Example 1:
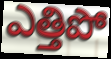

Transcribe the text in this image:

ఎత్తిపో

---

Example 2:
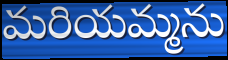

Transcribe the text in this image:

మరియమ్మను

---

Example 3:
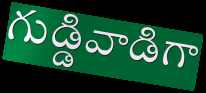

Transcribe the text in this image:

గుడ్డివాడిగా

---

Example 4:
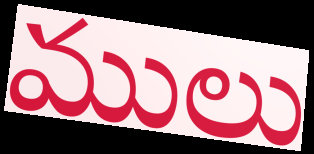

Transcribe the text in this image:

ములు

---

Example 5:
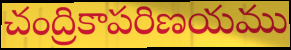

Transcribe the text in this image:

చంద్రికాపరిణయము